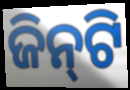
ଜିନ୍‌ଟି